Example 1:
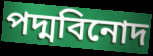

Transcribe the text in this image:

পদ্মবিনোদ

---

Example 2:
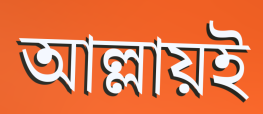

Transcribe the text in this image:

আল্লায়ই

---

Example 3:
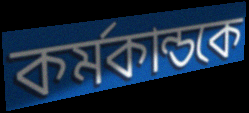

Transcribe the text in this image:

কর্মকান্ডকে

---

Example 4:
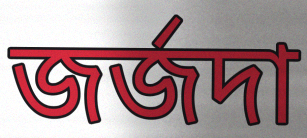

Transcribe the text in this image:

জর্জদা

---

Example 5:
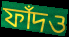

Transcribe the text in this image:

ফাঁদও